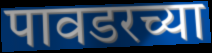
पावडरच्या